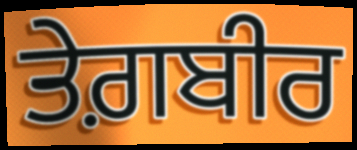
ਤੇਗ਼ਬੀਰ